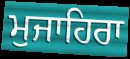
ਮੁਜਾਹਿਰਾ